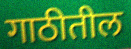
गाठीतील